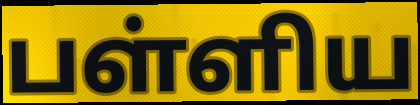
பள்ளிய